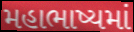
મહાભાષ્યમાં